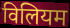
विलियम